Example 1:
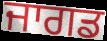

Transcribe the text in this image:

ਜਾਗਡ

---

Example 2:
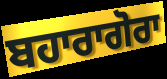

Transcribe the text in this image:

ਬਹਾਰਾਗੋਰਾ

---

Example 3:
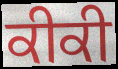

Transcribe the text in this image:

ਕੀਕੀ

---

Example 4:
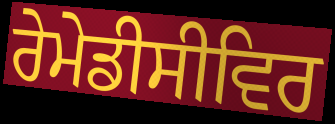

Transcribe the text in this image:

ਰੇਮੇਡੀਸੀਵਿਰ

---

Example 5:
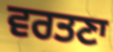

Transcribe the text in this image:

ਵਰਤਣਾ